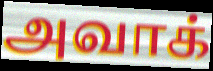
அவாக்